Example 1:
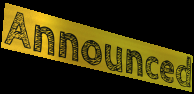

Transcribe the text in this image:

Announced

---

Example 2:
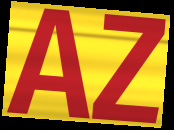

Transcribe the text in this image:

AZ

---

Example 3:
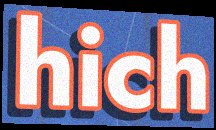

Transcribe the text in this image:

hich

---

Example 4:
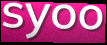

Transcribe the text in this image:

syoo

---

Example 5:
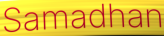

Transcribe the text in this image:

Samadhan